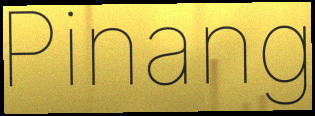
Pinang